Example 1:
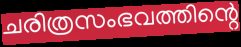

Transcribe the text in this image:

ചരിത്രസംഭവത്തിന്റെ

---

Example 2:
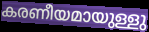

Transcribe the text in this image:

കരണീയമായുള്ളു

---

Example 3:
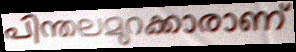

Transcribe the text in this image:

പിന്തലമുറക്കാരാണ്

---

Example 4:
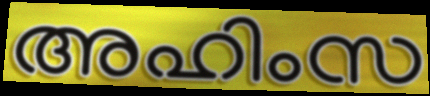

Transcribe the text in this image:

അഹിംസ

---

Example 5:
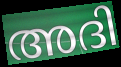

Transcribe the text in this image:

അദി